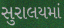
સુરાલયમાં